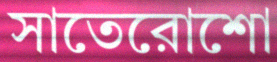
সাতেরোশো